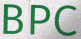
BPC